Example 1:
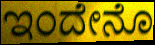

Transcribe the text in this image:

ಇಂದೇನೊ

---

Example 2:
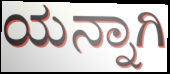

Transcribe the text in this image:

ಯನ್ನಾಗಿ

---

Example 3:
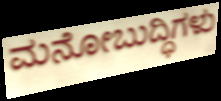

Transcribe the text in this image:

ಮನೋಬುದ್ಧಿಗಳು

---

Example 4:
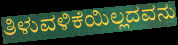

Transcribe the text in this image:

ತಿಳುವಳಿಕೆಯಿಲ್ಲದವನು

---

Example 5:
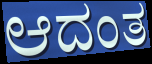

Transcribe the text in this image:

ಆದಂತ